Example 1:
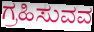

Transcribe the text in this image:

ಗ್ರಹಿಸುವವ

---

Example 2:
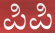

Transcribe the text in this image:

ಪಿಪಿ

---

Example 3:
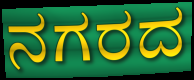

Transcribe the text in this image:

ನಗರದ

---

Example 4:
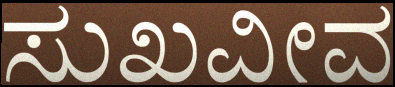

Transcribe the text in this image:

ಸುಖವೀವ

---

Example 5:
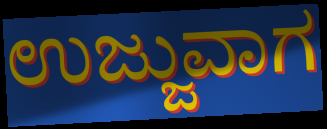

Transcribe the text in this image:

ಉಜ್ಜುವಾಗ